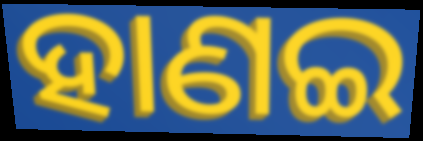
ହାଣଇ